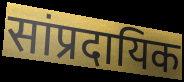
सांप्रदायिक